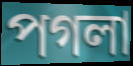
পগলা